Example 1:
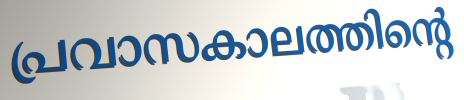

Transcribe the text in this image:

പ്രവാസകാലത്തിന്റെ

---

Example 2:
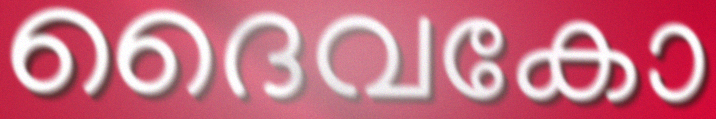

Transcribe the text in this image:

ദൈവകോ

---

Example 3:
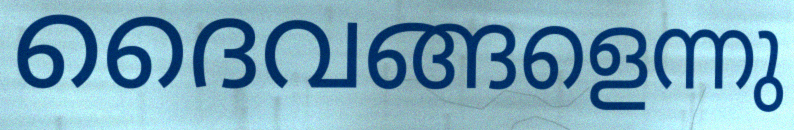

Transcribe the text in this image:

ദൈവങ്ങളെന്നു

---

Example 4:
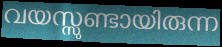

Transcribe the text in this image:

വയസ്സുണ്ടായിരുന്ന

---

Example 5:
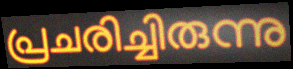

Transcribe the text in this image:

പ്രചരിച്ചിരുന്നു